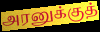
அரனுக்குத்